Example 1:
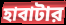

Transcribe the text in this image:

হাবাটার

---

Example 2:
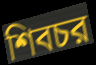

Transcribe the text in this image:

শিবচর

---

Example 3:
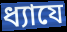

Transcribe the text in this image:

ধ্যাযে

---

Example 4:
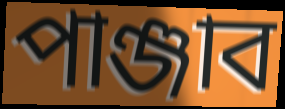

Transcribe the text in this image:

পাঞ্জাব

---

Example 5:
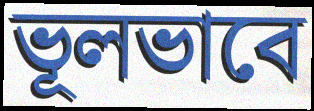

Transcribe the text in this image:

ভূলভাবে